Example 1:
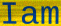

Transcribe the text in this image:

Iam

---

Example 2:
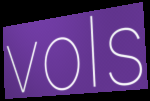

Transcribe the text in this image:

vols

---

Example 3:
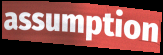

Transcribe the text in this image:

assumption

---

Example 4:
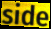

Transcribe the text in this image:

side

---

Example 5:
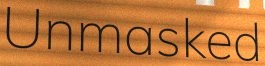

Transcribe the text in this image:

Unmasked